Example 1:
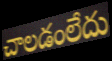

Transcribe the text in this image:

చాలడంలేదు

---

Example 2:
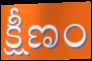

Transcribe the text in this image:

క్షీణం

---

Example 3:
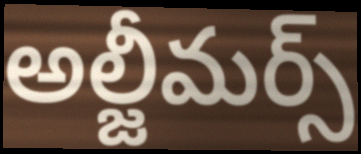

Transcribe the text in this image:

అల్జీమర్స్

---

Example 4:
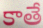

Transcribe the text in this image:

కాతే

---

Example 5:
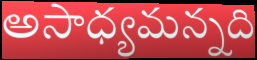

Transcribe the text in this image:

అసాధ్యమన్నది